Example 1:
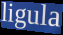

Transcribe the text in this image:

ligula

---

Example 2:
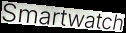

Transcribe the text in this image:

Smartwatch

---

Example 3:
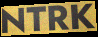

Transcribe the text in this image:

NTRK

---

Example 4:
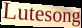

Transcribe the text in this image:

Lutesong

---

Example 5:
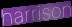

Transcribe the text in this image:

harrison